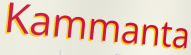
Kammanta